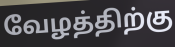
வேழத்திற்கு